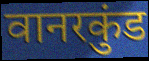
वानरकुंड